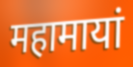
महामायां